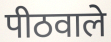
पीठवाले